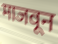
माजवून